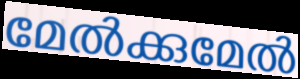
മേൽക്കുമേൽ